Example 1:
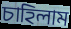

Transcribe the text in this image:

চাহিলাম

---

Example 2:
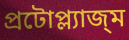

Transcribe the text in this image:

প্রটোপ্ল্যাজ্ম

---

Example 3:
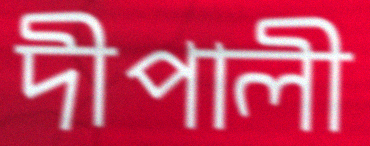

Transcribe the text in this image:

দীপালী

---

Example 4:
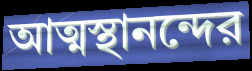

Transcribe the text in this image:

আত্মস্থানন্দের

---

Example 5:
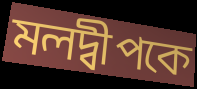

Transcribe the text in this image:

মলদ্বীপকে